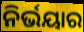
ନିର୍ଭୟାର